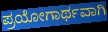
ಪ್ರಯೋಗಾರ್ಥವಾಗಿ